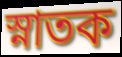
স্নাতক